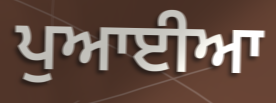
ਪੁਆਈਆ